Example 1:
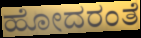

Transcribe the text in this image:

ಹೋದರಂತೆ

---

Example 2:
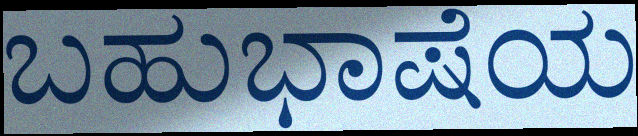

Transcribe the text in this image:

ಬಹುಭಾಷೆಯ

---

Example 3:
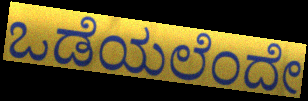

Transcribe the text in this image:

ಒಡೆಯಲೆಂದೇ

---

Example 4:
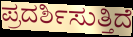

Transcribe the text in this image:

ಪ್ರದರ್ಶಿಸುತ್ತಿದೆ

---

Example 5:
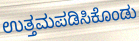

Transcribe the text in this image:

ಉತ್ತಮಪಡಿಸಿಕೊಂಡು